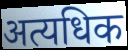
अत्यधिक